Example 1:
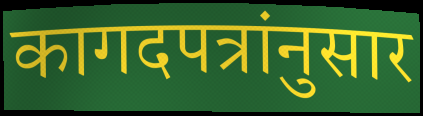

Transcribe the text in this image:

कागदपत्रांनुसार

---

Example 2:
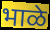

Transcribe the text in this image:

भाळे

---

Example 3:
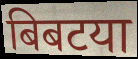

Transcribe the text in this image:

बिबटया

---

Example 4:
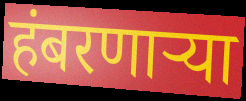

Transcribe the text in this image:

हंबरणाऱ्या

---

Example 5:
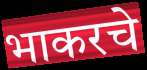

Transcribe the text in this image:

भाकरचे